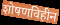
शोषणविहीन